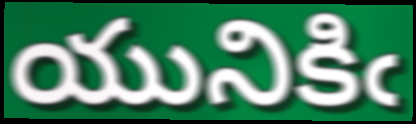
యునికిఁ